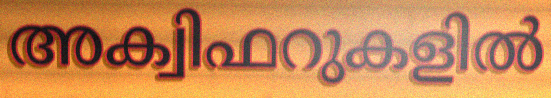
അക്വിഫറുകളിൽ